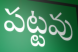
పట్టవు